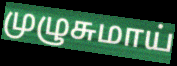
முழுசுமாய்